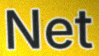
Net